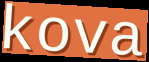
kova